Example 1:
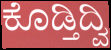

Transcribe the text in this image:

ಕೊಡ್ತಿದ್ವಿ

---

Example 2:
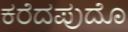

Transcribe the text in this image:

ಕರೆದಪುದೊ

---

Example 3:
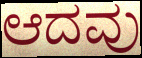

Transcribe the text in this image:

ಆದವು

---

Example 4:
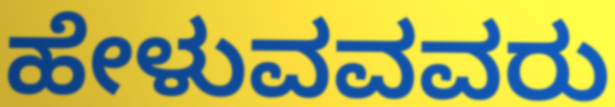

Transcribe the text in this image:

ಹೇಳುವವವರು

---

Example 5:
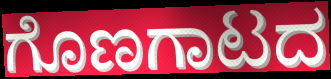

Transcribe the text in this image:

ಗೊಣಗಾಟದ